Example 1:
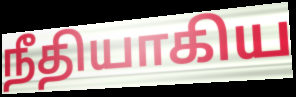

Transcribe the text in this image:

நீதியாகிய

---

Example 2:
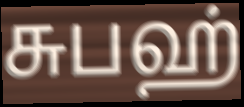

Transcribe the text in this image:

சுபஹ்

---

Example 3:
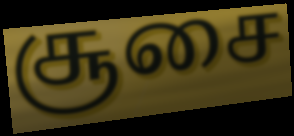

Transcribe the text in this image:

சூசை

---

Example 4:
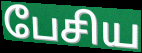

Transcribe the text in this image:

பேசிய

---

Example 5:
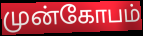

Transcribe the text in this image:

முன்கோபம்